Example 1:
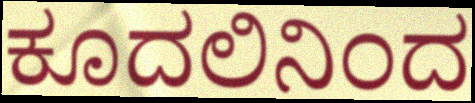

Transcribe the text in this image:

ಕೂದಲಿನಿಂದ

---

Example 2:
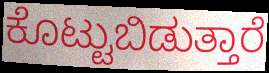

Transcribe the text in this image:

ಕೊಟ್ಟುಬಿಡುತ್ತಾರೆ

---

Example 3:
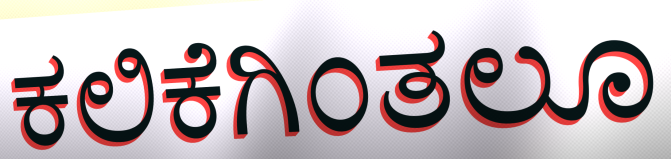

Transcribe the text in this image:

ಕಲಿಕೆಗಿಂತಲೂ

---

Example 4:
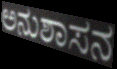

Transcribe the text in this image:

ಅನುಶಾಸನ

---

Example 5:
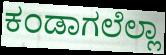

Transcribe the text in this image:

ಕಂಡಾಗಲೆಲ್ಲಾ